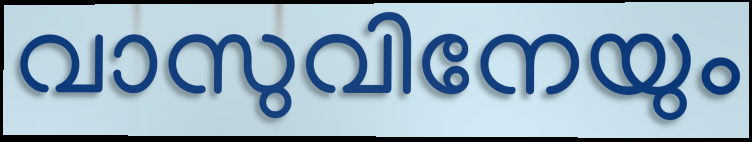
വാസുവിനേയും